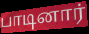
பாடினார்